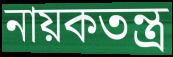
নায়কতন্ত্র